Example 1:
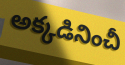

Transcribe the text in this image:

అక్కడినించీ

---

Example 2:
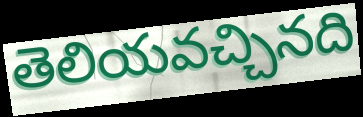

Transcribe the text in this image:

తెలియవచ్చినది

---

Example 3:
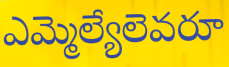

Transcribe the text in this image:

ఎమ్మెల్యేలెవరూ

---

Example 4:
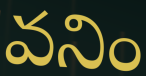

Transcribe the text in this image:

వనిం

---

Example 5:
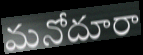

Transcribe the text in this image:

మనోదూరా